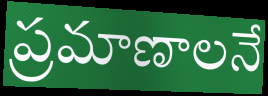
ప్రమాణాలనే